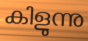
കിളുന്നു